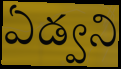
ఏడ్వని